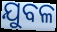
ଯୁବଳ